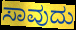
ಸಾವುದು